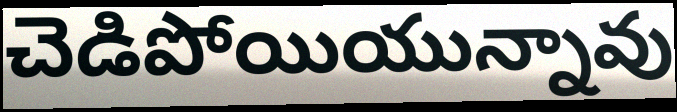
చెడిపోయియున్నావు